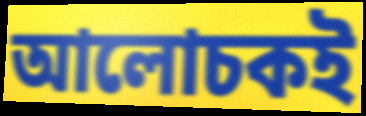
আলোচকই